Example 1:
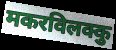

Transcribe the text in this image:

मकरविलक्कु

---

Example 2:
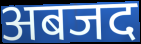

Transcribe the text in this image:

अबजद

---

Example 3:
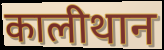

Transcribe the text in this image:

कालीथान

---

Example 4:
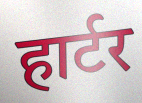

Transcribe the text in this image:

हार्टर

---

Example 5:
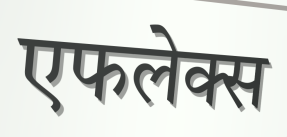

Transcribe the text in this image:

एफलेक्स